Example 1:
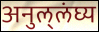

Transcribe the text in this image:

अनुल्लंघ्य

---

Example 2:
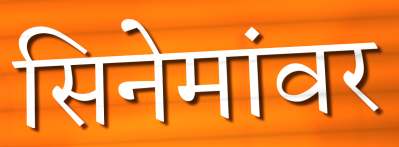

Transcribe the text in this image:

सिनेमांवर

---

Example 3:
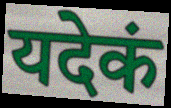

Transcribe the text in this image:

यदेकं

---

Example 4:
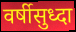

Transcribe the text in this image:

वर्षीसुध्दा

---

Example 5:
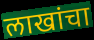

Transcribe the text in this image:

लाखांचा